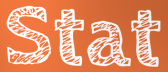
Stat